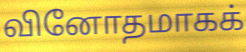
வினோதமாகக்